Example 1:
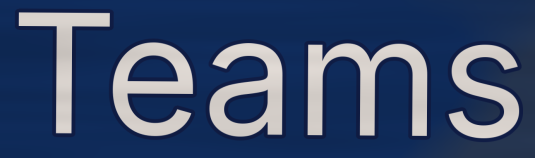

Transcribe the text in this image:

Teams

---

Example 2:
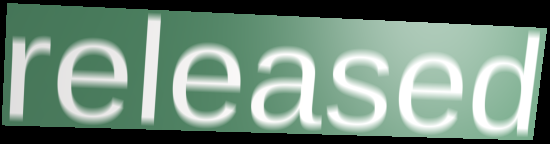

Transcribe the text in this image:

released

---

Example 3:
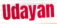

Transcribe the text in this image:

Udayan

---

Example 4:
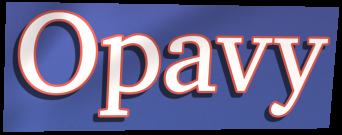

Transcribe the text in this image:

Opavy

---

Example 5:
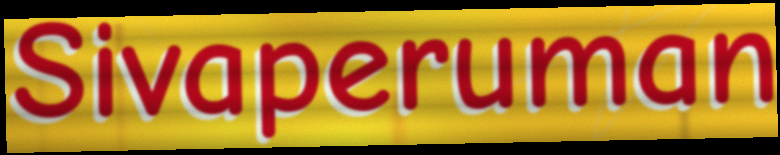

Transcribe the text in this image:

Sivaperuman